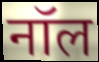
नॉल